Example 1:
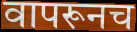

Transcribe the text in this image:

वापरूनच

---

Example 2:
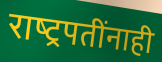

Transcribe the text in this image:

राष्ट्रपतींनाही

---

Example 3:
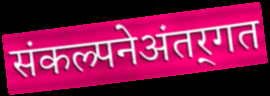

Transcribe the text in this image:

संकल्पनेअंतर्गत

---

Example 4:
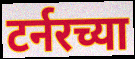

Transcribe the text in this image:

टर्नरच्या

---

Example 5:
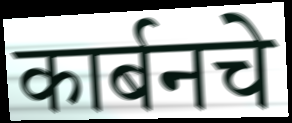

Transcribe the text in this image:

कार्बनचे